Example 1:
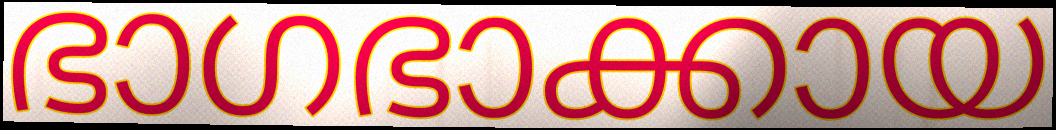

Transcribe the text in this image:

ഭാഗഭാക്കായ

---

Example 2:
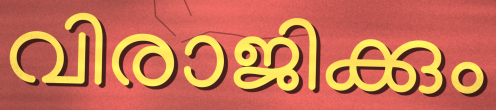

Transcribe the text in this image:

വിരാജിക്കും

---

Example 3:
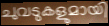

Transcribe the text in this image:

ചുവടുകളുമായി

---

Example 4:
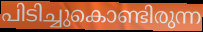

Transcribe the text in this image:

പിടിച്ചുകൊണ്ടിരുന്ന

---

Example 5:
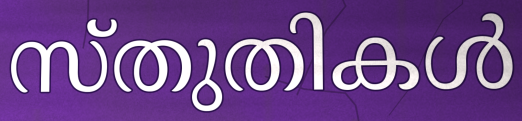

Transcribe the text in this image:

സ്തുതികൾ